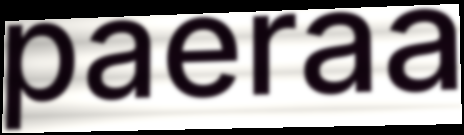
paeraa